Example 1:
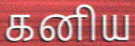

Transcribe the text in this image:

கனிய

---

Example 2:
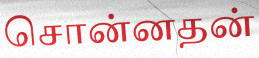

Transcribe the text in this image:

சொன்னதன்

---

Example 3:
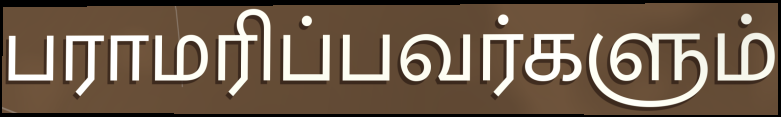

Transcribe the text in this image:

பராமரிப்பவர்களும்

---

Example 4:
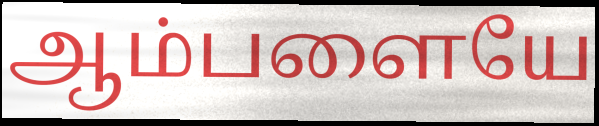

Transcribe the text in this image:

ஆம்பளையே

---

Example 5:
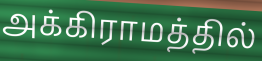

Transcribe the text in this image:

அக்கிராமத்தில்